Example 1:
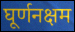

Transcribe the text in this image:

घूर्णनक्षम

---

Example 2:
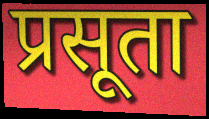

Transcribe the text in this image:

प्रसूता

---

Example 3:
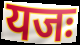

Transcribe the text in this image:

यजः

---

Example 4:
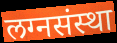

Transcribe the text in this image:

लग्नसंस्था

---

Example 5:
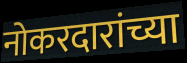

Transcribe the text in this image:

नोकरदारांच्या